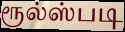
ரூல்ஸ்படி